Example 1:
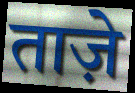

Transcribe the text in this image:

ताज़े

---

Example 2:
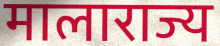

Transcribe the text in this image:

मालाराज्य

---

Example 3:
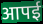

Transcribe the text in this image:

आपई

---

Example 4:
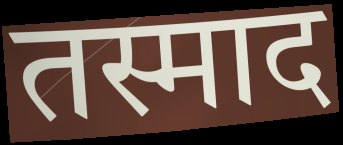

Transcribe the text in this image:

तस्माद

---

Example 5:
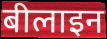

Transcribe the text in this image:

बीलाइन